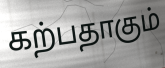
கற்பதாகும்